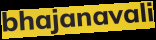
bhajanavali